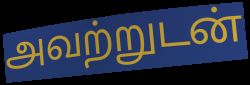
அவற்றுடன்